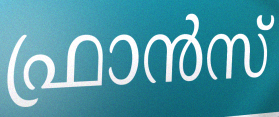
ഫ്രാൻസ്